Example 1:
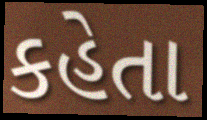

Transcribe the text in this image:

કહેતા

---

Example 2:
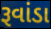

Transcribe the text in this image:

રૂવાંડા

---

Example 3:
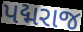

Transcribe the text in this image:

પદ્મરાજ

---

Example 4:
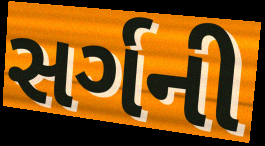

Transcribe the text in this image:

સર્ગની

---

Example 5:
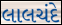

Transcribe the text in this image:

લાલચંદે